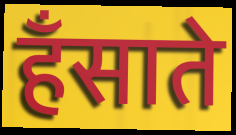
हँसाते